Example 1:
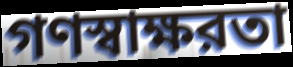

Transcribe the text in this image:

গণস্বাক্ষরতা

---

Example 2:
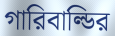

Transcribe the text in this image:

গারিবাল্ডির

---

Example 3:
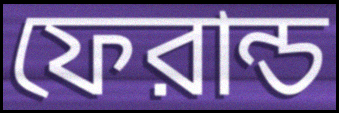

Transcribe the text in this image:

ফেরান্ড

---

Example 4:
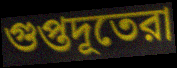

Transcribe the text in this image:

গুপ্তদূতেরা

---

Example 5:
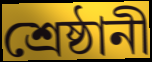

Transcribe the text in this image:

শ্রেষ্ঠানী